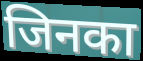
जिनका